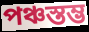
পঞ্চস্তম্ভ